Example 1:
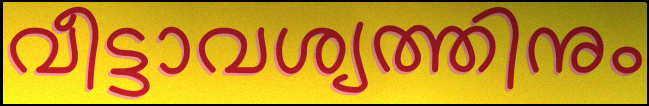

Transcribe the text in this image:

വീട്ടാവശ്യത്തിനും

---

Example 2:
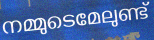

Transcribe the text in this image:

നമ്മുടെമേലുണ്ട്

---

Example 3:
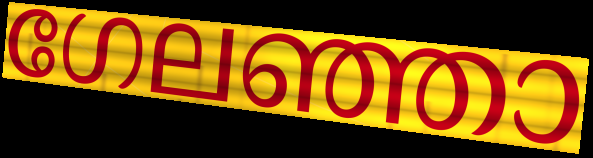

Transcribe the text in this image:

ഗേലഞ്ഞാ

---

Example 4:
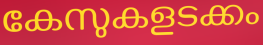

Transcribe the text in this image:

കേസുകളടക്കം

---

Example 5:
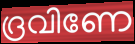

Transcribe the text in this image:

ദ്രവിണേ